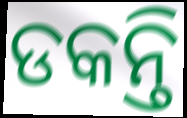
ଡକନ୍ତି